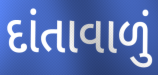
દાંતાવાળું